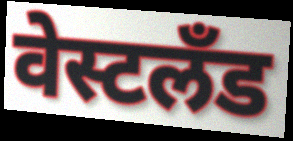
वेस्टलँड